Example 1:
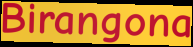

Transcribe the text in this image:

Birangona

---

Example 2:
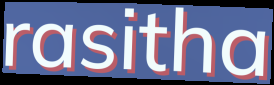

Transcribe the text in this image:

rasitha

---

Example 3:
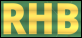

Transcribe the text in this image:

RHB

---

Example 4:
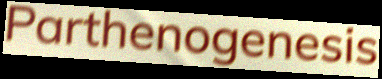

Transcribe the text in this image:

Parthenogenesis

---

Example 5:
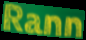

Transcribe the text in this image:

Rann